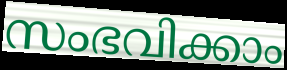
സംഭവിക്കാം